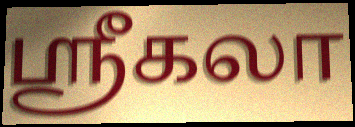
ஶ்ரீகலா